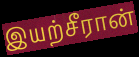
இயற்சீரான்